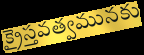
క్రైస్తవత్వమునకు